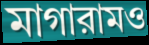
মাগারামও